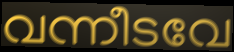
വന്നീടവേ